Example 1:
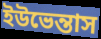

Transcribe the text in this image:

ইউভেন্তাস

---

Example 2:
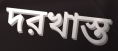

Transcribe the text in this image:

দরখাস্ত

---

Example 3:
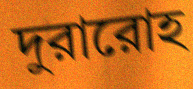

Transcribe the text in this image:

দুরারোহ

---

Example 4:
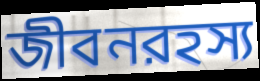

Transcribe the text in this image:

জীবনরহস্য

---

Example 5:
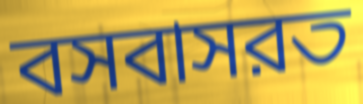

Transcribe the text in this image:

বসবাসরত